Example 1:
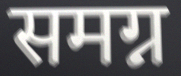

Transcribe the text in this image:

समग्न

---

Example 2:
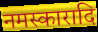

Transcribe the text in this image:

नमस्कारादि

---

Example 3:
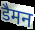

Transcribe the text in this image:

डैमन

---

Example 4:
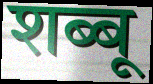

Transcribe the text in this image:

शब्बू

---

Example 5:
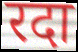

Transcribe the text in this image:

रदा